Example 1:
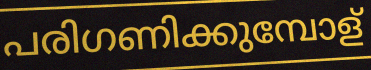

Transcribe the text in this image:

പരിഗണിക്കുമ്പോള്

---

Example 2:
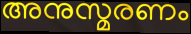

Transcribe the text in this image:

അനുസ്മരണം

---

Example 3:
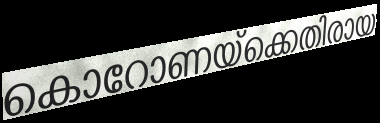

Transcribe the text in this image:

കൊറോണയ്‌ക്കെതിരായ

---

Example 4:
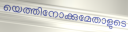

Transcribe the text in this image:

യെത്തിനോക്കുമേതാളുടെ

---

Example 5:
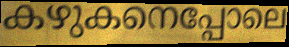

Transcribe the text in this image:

കഴുകനെപ്പോലെ